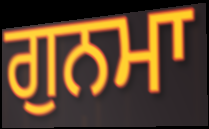
ਗੁਨਮਾ